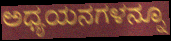
ಅಧ್ಯಯನಗಳನ್ನೂ